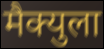
मैक्युला